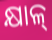
କ୍ଷାଳ୍